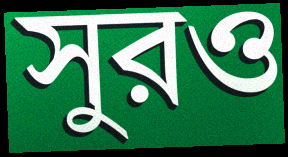
সুরও